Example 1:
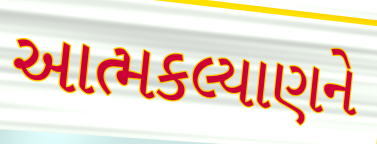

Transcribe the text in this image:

આત્મકલ્યાણને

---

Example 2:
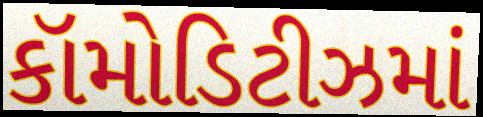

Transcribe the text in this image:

કૉમોડિટીઝમાં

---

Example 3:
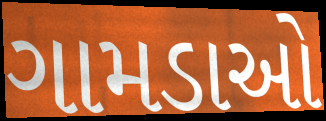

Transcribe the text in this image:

ગામડાઓ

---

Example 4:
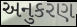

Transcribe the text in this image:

અનુકરણ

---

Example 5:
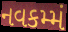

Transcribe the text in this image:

નવકમ્મં